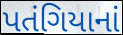
પતંગિયાનાં